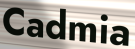
Cadmia